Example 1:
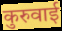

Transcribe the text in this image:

कुरुवाई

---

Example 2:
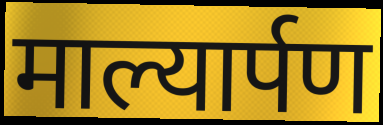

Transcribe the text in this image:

माल्यार्पण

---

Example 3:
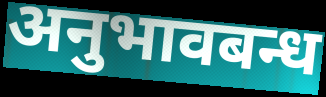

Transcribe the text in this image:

अनुभावबन्ध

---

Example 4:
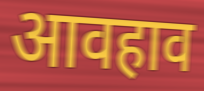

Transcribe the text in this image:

आवहाव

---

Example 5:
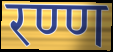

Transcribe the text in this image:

रण्ण